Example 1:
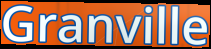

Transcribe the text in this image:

Granville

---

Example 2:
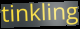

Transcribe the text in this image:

tinkling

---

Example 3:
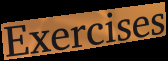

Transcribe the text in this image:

Exercises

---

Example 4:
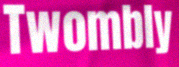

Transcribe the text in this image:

Twombly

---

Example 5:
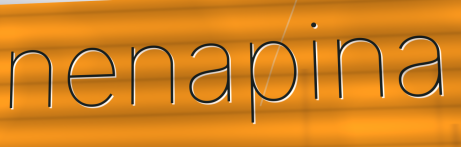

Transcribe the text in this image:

nenapina